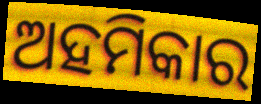
ଅହମିକାର